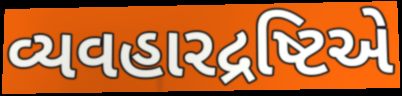
વ્યવહારદ્રષ્ટિએ